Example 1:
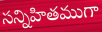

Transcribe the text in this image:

సన్నిహితముగా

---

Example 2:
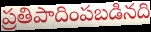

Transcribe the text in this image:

ప్రతిపాదింపబడినది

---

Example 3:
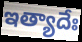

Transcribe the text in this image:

ఇత్యాదేః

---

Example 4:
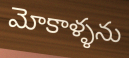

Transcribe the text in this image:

మోకాళ్ళను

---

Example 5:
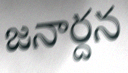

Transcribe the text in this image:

జనార్దన